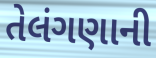
તેલંગણાની